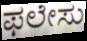
ಫಲೇಸು